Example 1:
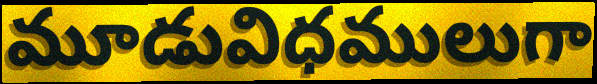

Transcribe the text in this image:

మూడువిధములుగా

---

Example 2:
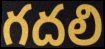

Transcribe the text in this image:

గదలి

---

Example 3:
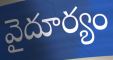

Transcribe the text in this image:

వైదూర్యం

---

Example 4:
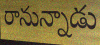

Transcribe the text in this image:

రానున్నాడు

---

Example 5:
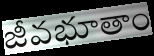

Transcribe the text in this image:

జీవభూతాం